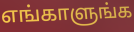
எங்காளுங்க